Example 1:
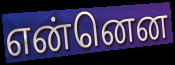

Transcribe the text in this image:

என்னென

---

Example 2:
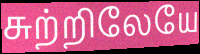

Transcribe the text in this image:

சுற்றிலேயே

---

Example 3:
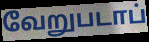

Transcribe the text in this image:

வேறுபடாப்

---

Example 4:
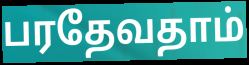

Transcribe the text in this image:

பரதேவதாம்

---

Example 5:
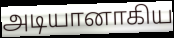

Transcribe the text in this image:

அடியானாகிய